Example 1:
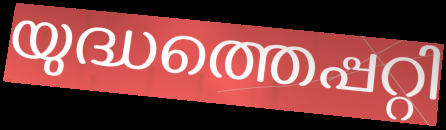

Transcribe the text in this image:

യുദ്ധത്തെപ്പറ്റി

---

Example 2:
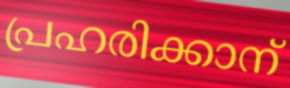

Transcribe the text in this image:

പ്രഹരിക്കാന്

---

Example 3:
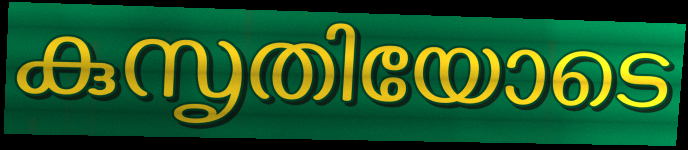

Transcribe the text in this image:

കുസൃതിയോടെ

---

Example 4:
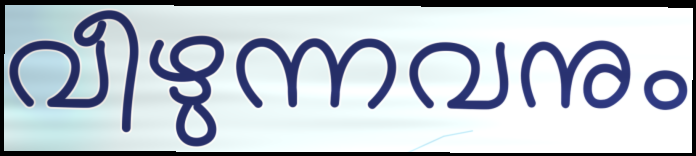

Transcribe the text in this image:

വീഴുന്നവനും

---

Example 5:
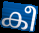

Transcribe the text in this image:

കീ